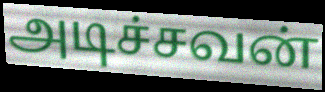
அடிச்சவன்